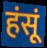
हंसूं